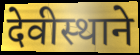
देवीस्थाने